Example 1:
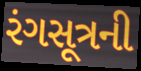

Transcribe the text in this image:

રંગસૂત્રની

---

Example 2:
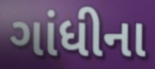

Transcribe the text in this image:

ગાંધીના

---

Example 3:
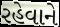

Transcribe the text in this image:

રહેવાને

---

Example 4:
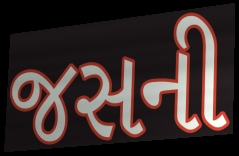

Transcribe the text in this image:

જસની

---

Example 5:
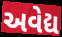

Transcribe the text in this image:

અવેદ્ય